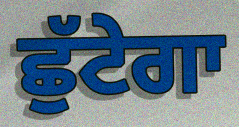
ਛੁੱਟੇਗਾ